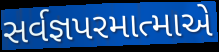
સર્વજ્ઞપરમાત્માએ